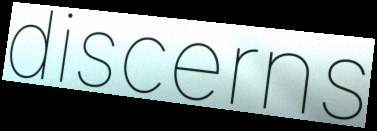
discerns